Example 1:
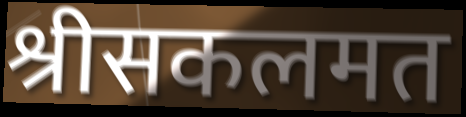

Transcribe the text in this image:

श्रीसकलमत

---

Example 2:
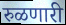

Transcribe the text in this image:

रुळणारी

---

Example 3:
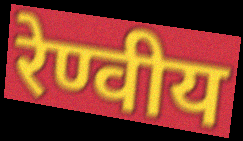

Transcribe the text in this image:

रेण्वीय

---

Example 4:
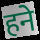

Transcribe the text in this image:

हने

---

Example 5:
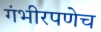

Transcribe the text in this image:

गंभीरपणेच